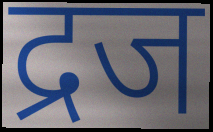
द्रज